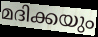
മദിക്കയും